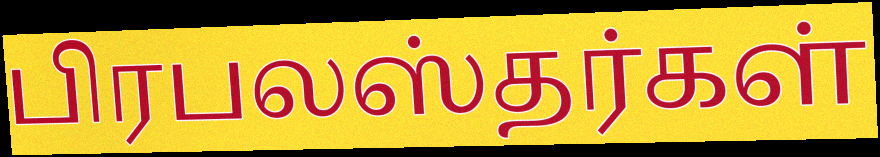
பிரபலஸ்தர்கள்